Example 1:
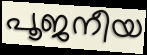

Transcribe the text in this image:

പൂജനീയ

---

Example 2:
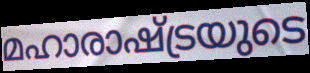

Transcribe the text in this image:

മഹാരാഷ്ട്രയുടെ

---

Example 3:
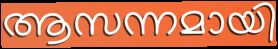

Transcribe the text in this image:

ആസന്നമായി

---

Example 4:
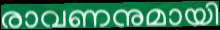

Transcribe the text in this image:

രാവണനുമായി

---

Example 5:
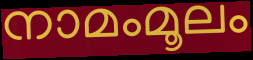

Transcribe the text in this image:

നാമംമൂലം